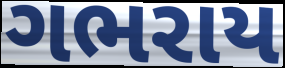
ગભરાય